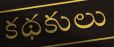
కథకులు